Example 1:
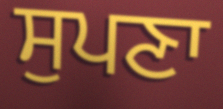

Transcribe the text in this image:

ਸੁਪਣਾ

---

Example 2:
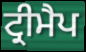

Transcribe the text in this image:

ਟ੍ਰੀਮੈਪ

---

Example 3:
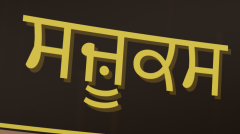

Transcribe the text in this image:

ਸਜ਼ੂਕਸ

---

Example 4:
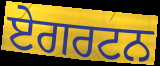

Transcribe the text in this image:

ਏਗਰਟਨ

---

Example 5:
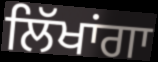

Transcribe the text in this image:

ਲਿੱਖਾਂਗਾ